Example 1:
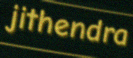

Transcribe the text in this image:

jithendra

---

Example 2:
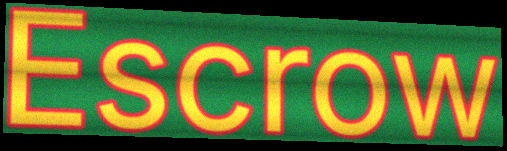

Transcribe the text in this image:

Escrow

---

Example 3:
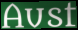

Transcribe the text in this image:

Aust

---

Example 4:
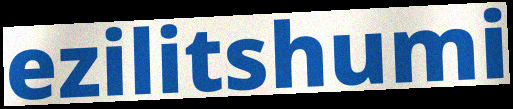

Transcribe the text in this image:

ezilitshumi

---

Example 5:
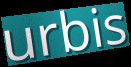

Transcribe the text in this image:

urbis